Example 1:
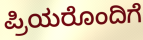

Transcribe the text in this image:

ಪ್ರಿಯರೊಂದಿಗೆ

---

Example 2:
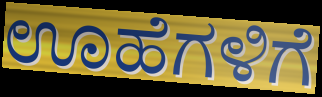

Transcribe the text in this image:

ಊಹೆಗಳಿಗೆ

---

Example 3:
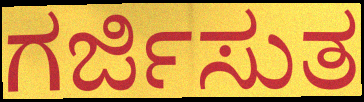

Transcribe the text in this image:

ಗರ್ಜಿಸುತ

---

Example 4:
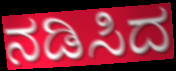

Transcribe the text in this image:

ನಡಿಸಿದ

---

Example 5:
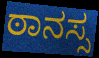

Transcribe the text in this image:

ಠಾನಸ್ಸ